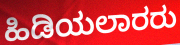
ಹಿಡಿಯಲಾರರು